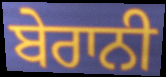
ਬੇਰਾਨੀ